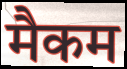
मैकम